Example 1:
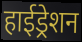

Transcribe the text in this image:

हाईड्रेशन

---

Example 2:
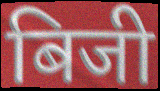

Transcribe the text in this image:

बिजी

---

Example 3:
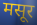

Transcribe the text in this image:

मसूर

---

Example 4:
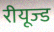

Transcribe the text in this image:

रीयूज्ड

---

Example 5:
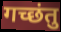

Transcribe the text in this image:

गच्छंतु